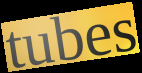
tubes